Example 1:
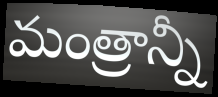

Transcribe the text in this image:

మంత్రాన్నీ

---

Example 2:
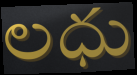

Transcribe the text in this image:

లధు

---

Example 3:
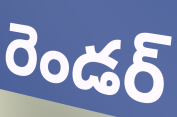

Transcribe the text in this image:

రెండర్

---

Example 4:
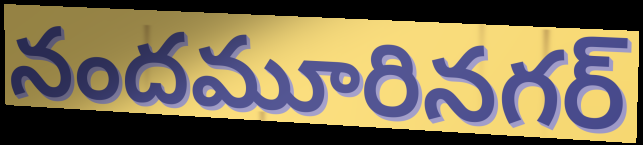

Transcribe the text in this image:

నందమూరినగర్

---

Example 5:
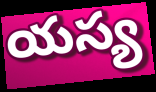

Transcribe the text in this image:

యస్య